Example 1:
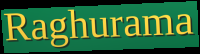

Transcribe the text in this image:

Raghurama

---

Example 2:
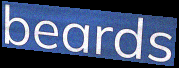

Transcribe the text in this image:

beards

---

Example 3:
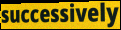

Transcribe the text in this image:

successively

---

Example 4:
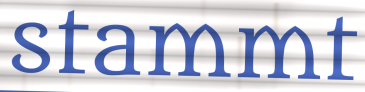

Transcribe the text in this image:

stammt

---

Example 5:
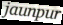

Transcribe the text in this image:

jaunpur